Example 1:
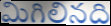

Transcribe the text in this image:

మిగిలినది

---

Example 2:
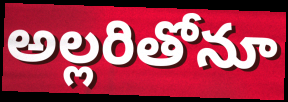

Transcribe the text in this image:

అల్లరితోనూ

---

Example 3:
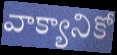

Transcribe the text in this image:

వాక్యానికో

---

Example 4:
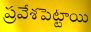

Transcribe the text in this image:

ప్రవేశపెట్టాయి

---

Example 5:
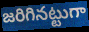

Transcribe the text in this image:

జరిగినట్టుగా